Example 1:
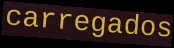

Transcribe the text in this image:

carregados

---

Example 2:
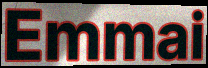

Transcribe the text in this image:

Emmai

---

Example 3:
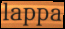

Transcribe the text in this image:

lappa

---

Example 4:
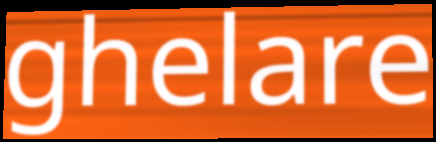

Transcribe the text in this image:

ghelare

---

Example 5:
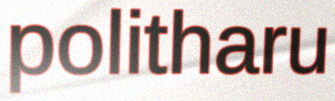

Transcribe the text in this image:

politharu